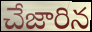
చేజారిన